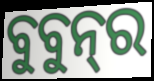
ବୁବୁନ୍‌ର